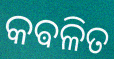
କଵଳିତ